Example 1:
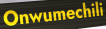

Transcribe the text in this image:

Onwumechili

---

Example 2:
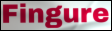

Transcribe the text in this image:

Fingure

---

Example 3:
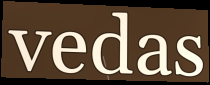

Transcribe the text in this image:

vedas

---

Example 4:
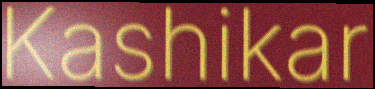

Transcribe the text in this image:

Kashikar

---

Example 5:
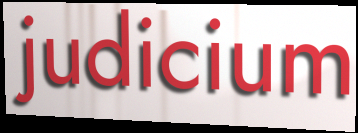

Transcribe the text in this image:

judicium